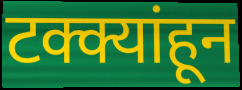
टक्क्यांहून